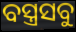
ବସ୍ତ୍ରସବୁ